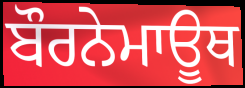
ਬੌਰਨੇਮਾਊਥ